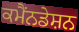
ਕਮੈਂਨਡੇਸ਼ਨ